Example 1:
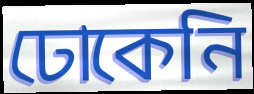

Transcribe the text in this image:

ঢোকেনি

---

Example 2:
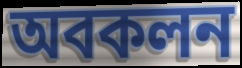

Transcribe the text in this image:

অবকলন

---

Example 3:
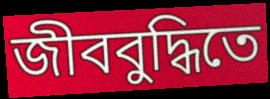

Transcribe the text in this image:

জীববুদ্ধিতে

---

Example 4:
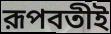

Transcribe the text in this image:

রূপবতীই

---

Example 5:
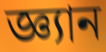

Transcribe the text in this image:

জ্ঞ্যান